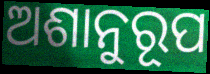
ଅଶାନୁରୂପ